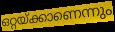
ഒറ്റയ്ക്കാണെന്നും